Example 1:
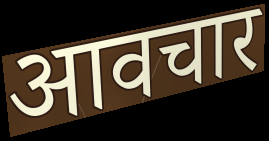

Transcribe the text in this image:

आवचार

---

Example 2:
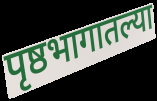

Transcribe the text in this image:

पृष्ठभागातल्या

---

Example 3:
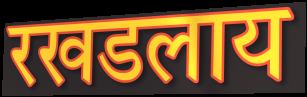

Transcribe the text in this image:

रखडलाय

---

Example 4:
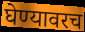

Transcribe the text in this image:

घेण्यावरच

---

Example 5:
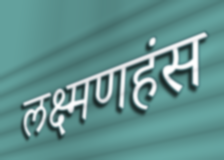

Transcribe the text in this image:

लक्ष्मणहंस